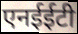
एनईईटी